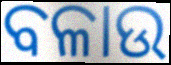
ବଳାଉ